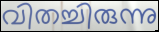
വിതച്ചിരുന്നു